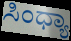
ಸಿಂಧ್ಯಾ